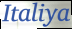
Italiya